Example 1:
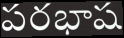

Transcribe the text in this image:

పరభాష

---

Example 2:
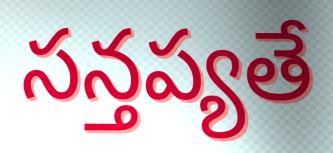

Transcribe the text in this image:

సన్తప్యతే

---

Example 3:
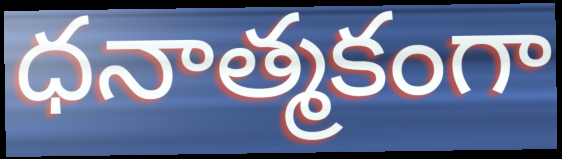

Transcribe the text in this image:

ధనాత్మకంగా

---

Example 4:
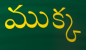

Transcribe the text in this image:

ముక్క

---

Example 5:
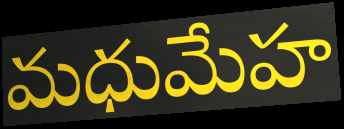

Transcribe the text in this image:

మధుమేహ